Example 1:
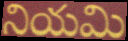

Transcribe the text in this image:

నియమి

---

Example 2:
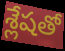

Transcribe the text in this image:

శ్లేషతో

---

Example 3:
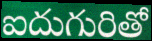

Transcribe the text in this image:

ఐదుగురితో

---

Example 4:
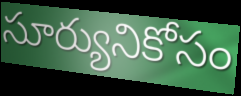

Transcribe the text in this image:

సూర్యునికోసం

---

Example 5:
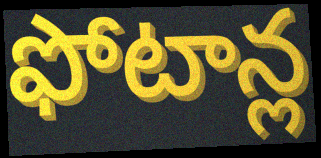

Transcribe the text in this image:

ఫోటాన్ల